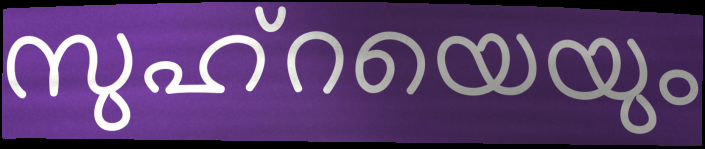
സുഹ്റയെയും